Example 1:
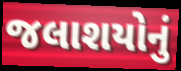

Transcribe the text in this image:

જલાશયોનું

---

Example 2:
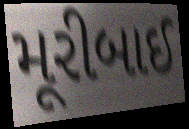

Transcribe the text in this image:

મૂરીબાઈ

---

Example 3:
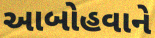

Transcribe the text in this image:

આબોહવાને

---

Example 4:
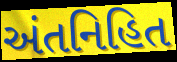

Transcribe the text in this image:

અંતનિહિત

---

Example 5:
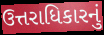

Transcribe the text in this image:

ઉત્તરાધિકારનું